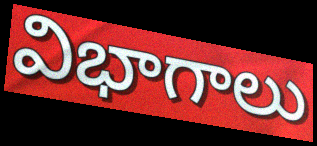
విభాగాలు